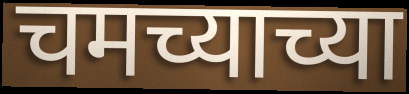
चमच्याच्या